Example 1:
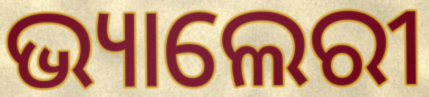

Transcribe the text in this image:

ଭ୍ୟାଲେରୀ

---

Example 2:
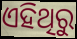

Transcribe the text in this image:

ଏହିଥିରୁ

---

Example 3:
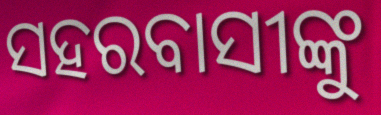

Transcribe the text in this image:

ସହରବାସୀଙ୍କୁ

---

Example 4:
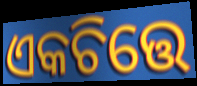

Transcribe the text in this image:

ଏକଚିତ୍ତେ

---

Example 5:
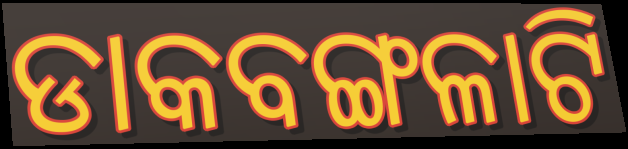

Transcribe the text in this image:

ଡାକବଙ୍ଗଳାଟି